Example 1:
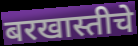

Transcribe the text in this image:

बरखास्तीचे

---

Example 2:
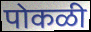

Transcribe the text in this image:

पोकळी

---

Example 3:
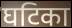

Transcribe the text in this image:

घटिका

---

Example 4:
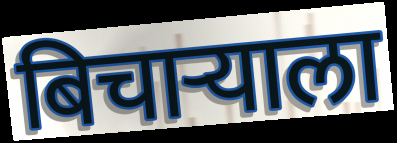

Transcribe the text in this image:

बिचार्‍याला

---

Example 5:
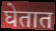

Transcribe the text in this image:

घेतात